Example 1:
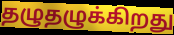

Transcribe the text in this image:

தழுதழுக்கிறது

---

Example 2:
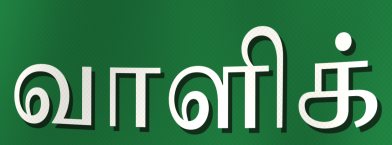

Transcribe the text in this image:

வாளிக்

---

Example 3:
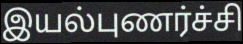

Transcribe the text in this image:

இயல்புணர்ச்சி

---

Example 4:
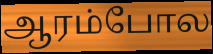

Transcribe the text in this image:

ஆரம்போல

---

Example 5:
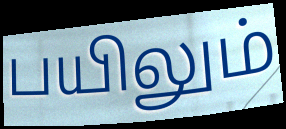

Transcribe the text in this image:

பயிலும்